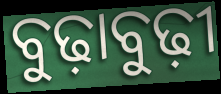
ବୁଢ଼ାବୁଢ଼ୀ